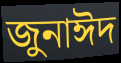
জুনাঈদ